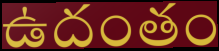
ఉదంతం